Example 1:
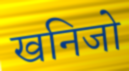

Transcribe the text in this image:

खनिजो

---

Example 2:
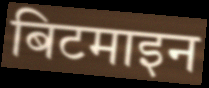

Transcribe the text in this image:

बिटमाइन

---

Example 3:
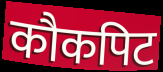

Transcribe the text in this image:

कौकपिट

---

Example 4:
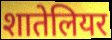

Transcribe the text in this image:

शातेलियर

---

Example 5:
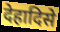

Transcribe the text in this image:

देहादिसे